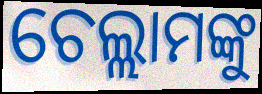
ଚେଲ୍ଲାମଙ୍କୁ